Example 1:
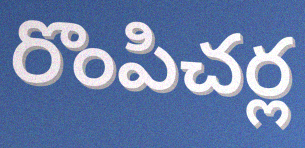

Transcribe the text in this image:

రొంపిచర్ల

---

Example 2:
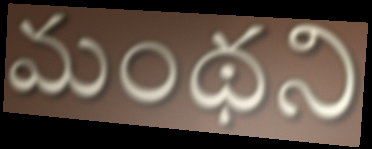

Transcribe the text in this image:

మంథని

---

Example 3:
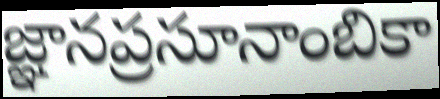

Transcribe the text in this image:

జ్ఞానప్రసూనాంబికా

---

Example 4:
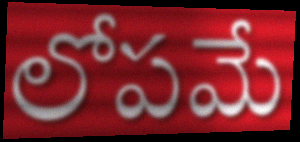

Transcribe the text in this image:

లోపమే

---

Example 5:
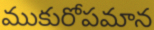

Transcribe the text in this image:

ముకురోపమాన